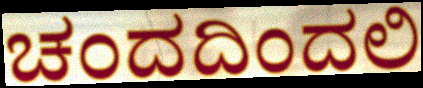
ಚಂದದಿಂದಲಿ